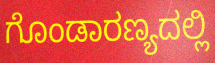
ಗೊಂಡಾರಣ್ಯದಲ್ಲಿ